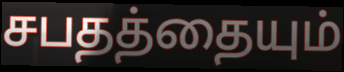
சபதத்தையும்